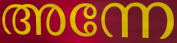
അന്നേ